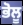
ਭੋਲੂ